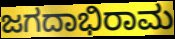
ಜಗದಾಭಿರಾಮ